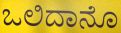
ಒಲಿದಾನೊ